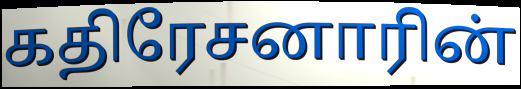
கதிரேசனாரின்